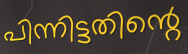
പിന്നിട്ടതിന്റെ